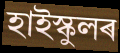
হাইস্কুলৰ